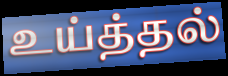
உய்த்தல்